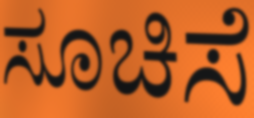
ಸೂಚಿಸೆ